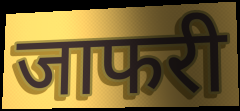
जाफरी